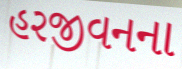
હરજીવનના